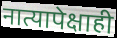
नात्यापेक्षाही